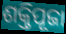
ଶକ୍ତିପୂଜା